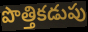
పొత్తికడుపు